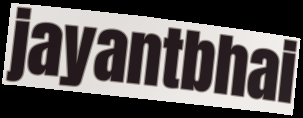
jayantbhai